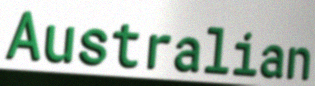
Australian